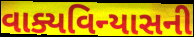
વાક્યવિન્યાસની